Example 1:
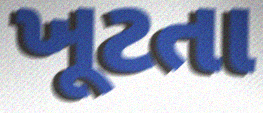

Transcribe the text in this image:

ખૂટતા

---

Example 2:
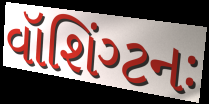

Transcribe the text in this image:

વૉશિંગ્ટનઃ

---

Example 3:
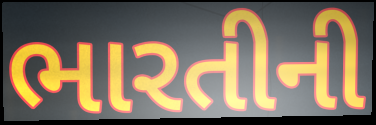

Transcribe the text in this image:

ભારતીની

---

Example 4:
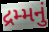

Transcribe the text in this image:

દ્રમ્મનું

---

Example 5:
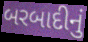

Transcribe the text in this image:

બરબાદીનું